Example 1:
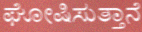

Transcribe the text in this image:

ಘೋಷಿಸುತ್ತಾನೆ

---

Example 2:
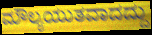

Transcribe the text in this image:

ಮೌಲ್ಯಯುತವಾದದ್ದು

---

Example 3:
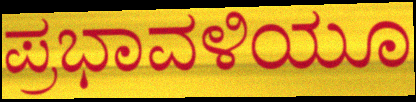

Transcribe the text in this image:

ಪ್ರಭಾವಳಿಯೂ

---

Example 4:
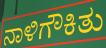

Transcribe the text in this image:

ನಾಳಿಗೌಕಿತು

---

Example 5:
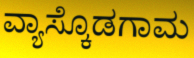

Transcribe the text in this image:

ವ್ಯಾಸ್ಕೊಡಗಾಮ